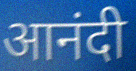
आनंदी